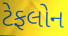
ટેફલોન